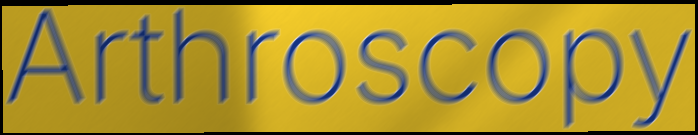
Arthroscopy